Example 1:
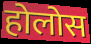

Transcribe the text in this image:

होलोस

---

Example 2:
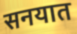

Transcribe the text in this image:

सनयात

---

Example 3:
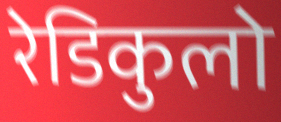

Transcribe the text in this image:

रेडिकुलो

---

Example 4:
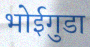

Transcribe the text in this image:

भोईगुडा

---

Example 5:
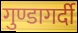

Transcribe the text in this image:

गुण्डागर्दी